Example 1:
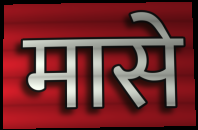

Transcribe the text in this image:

मासे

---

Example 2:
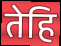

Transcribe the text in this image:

तेहि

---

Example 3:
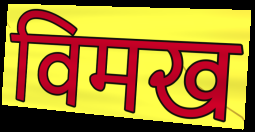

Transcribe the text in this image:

विमख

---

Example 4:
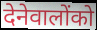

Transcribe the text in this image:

देनेवालोंको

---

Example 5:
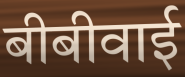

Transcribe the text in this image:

बीबीवाई